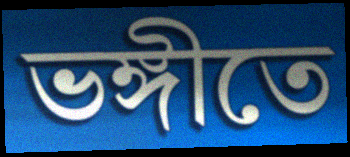
ভঙ্গীতে